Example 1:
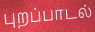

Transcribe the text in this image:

புறப்பாடல்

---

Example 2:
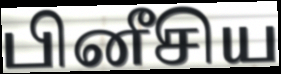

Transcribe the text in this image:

பினீசிய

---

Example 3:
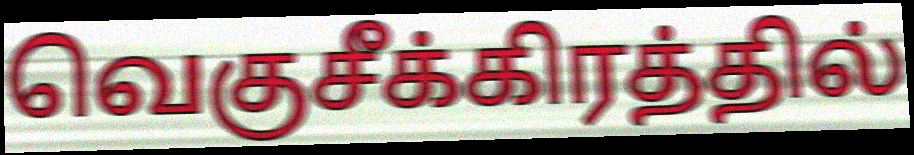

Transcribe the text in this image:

வெகுசீக்கிரத்தில்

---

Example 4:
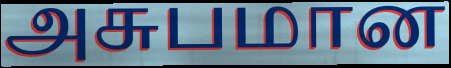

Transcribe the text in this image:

அசுபமான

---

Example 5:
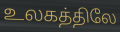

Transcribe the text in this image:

உலகத்திலே